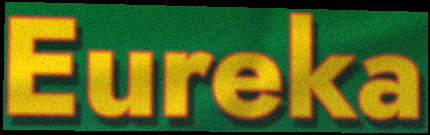
Eureka